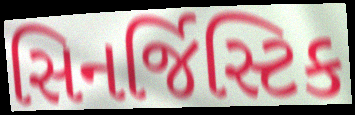
સિનર્જિસ્ટિક